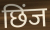
छिंज